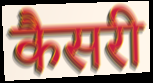
कैसरी